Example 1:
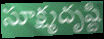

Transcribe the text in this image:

సూక్ష్మదృష్టి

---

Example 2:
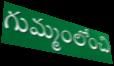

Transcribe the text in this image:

గుమ్మంలోంచి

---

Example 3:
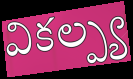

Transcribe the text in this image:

వికల్ప్య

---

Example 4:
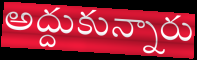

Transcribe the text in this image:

అద్దుకున్నారు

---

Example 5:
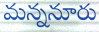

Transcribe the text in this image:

మన్ననూరు